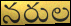
నరుల